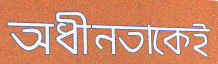
অধীনতাকেই